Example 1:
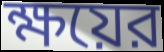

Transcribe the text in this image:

ক্ষয়ের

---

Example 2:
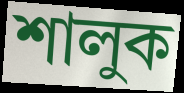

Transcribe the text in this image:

শালুক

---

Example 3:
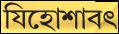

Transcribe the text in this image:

যিহোশাবৎ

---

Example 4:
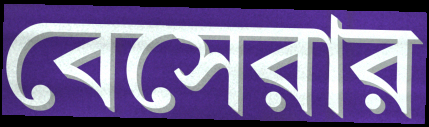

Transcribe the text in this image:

বেসেরার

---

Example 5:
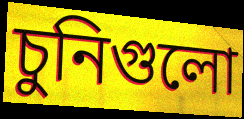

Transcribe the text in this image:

চুনিগুলো